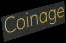
Coinage